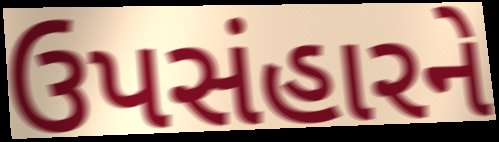
ઉપસંહારને